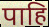
पाहि